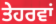
ਤੇਹਰਵਾਂ